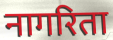
नागरिता